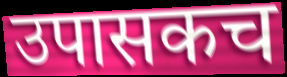
उपासकच